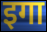
इगा